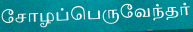
சோழப்பெருவேந்தர்